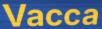
Vacca